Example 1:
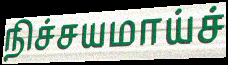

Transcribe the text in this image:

நிச்சயமாய்ச்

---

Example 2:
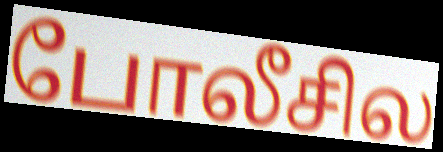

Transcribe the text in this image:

போலீசில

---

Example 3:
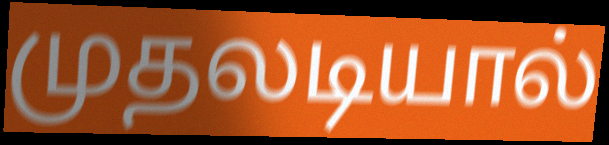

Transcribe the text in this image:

முதலடியால்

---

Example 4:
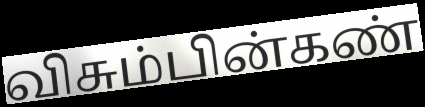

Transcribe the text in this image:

விசும்பின்கண்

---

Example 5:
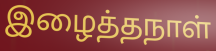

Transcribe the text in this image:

இழைத்தநாள்